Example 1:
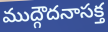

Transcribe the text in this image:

ముద్గౌదనాసక్త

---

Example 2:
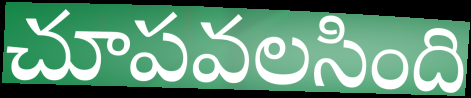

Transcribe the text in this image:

చూపవలసింది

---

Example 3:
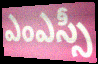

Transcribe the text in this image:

ఎంఎస్సీ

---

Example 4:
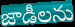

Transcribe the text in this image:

జాడీలను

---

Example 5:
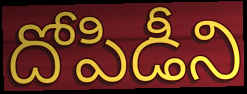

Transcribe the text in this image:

దోపిడీని